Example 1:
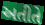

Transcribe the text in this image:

અતીતે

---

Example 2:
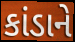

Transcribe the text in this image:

કાંડાને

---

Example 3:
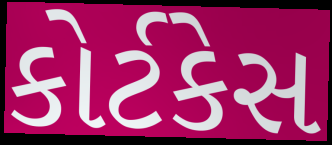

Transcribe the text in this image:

કોર્ટકેસ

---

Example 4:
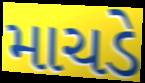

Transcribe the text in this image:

માચડે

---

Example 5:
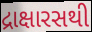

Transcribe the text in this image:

દ્રાક્ષારસથી